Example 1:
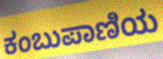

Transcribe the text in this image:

ಕಂಬುಪಾಣಿಯ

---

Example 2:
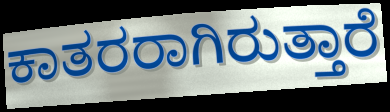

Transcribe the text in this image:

ಕಾತರರಾಗಿರುತ್ತಾರೆ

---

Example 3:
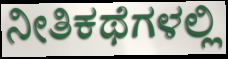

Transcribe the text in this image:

ನೀತಿಕಥೆಗಳಲ್ಲಿ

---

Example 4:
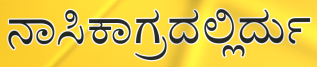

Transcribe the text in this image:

ನಾಸಿಕಾಗ್ರದಲ್ಲಿರ್ದು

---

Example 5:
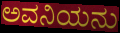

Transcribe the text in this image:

ಅವನಿಯನು